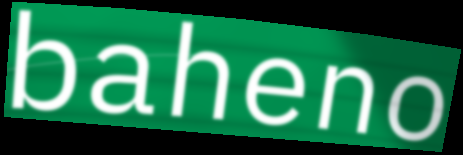
baheno